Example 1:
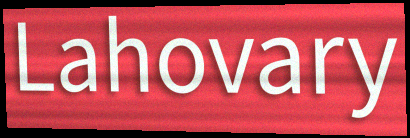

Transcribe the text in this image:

Lahovary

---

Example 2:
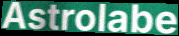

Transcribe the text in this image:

Astrolabe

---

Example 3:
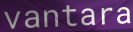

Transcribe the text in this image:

vantara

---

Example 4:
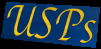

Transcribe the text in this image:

USPs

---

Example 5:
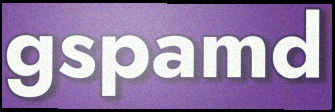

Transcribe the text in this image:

gspamd